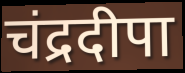
चंद्रदीपा